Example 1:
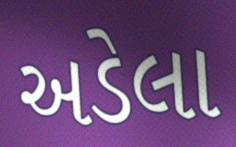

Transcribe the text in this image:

અડેલા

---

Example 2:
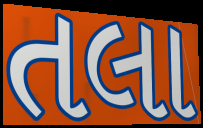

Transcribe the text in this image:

તલા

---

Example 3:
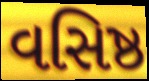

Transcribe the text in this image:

વસિષ્ઠ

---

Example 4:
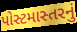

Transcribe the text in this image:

પોસ્ટમાસ્તરનું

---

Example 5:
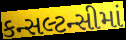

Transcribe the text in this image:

કન્સલ્ટન્સીમાં